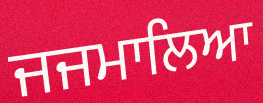
ਜਜਮਾਲਿਆ